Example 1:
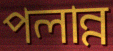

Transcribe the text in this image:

পলান্ন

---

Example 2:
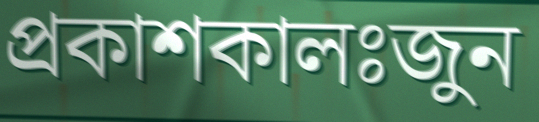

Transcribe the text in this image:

প্রকাশকালঃজুন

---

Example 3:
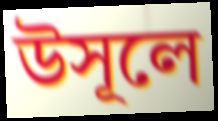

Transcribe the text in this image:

উসূলে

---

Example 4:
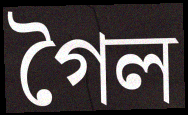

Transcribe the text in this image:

গৈল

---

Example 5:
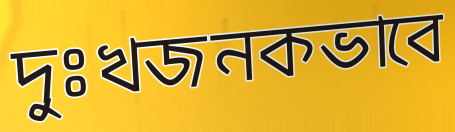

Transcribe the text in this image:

দুঃখজনকভাবে